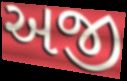
અજી